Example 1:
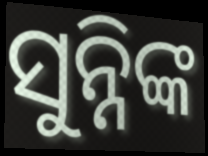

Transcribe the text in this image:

ସୁନ୍ନିଙ୍କ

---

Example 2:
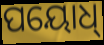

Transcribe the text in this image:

ପୟୋଧ୍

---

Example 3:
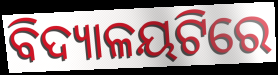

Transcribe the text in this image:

ବିଦ୍ୟାଳୟଟିରେ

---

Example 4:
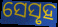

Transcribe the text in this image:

ସେସୃହ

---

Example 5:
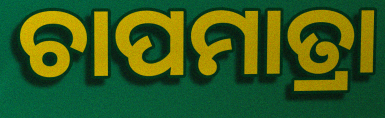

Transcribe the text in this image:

ଚାପମାତ୍ରା